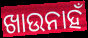
ଖାଉନାହଁ